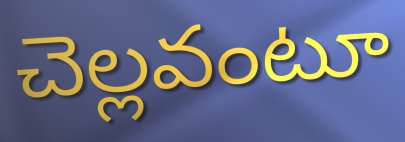
చెల్లవంటూ